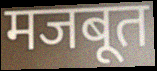
मजबूत